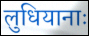
लुधियानाः